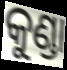
କୁଣ୍ଡା